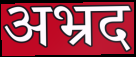
अभ्रद